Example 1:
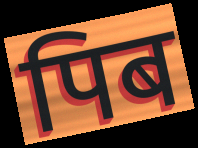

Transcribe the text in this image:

पिब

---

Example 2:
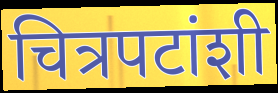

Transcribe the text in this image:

चित्रपटांशी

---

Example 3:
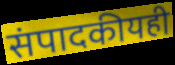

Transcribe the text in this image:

संपादकीयही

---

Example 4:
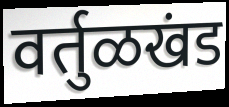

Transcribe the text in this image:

वर्तुळखंड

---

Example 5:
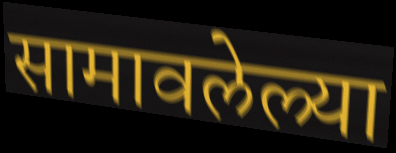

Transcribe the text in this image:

सामावलेल्या